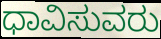
ಧಾವಿಸುವರು